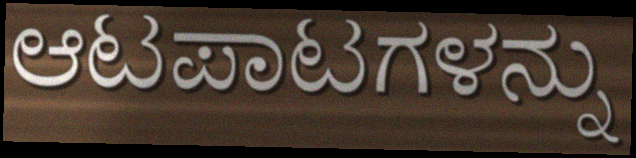
ಆಟಪಾಟಗಳನ್ನು